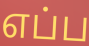
எப்ப